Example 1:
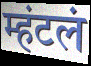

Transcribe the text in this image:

म्हंटलं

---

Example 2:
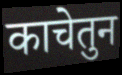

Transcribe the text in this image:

काचेतुन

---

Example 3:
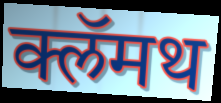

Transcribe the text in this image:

क्लॅमथ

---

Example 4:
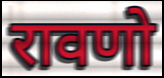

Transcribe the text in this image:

रावणो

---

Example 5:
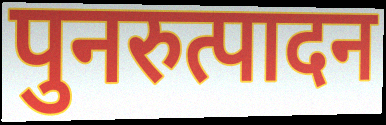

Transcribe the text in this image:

पुनरुत्पादन